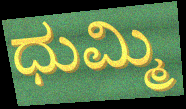
ಧುಮ್ಮಿ